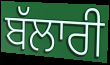
ਬੱਲਾਰੀ